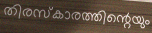
തിരസ്കാരത്തിന്റെയും